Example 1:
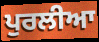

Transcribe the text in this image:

ਪੁਰਲੀਆ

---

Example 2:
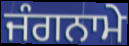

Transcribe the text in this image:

ਜੰਗਨਾਮੇ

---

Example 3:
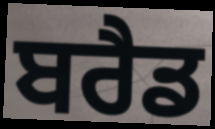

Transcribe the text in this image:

ਬਰੈਡ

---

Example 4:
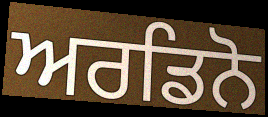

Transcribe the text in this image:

ਅਰਡਿਨੋ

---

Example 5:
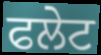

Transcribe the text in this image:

ਫਲੇਟ